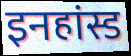
इनहांस्ड